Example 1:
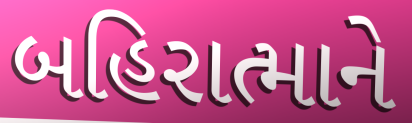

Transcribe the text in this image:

બહિરાત્માને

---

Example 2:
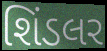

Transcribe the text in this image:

શિંડલર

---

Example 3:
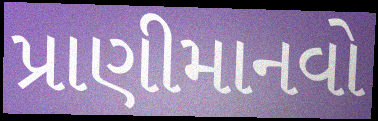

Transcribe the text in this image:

પ્રાણીમાનવો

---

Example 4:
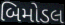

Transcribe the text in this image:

બિમોડલ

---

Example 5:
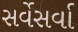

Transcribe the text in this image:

સર્વેસર્વા